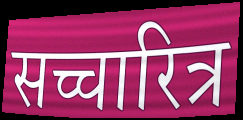
सच्चारित्र